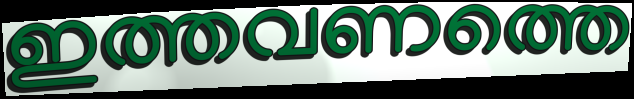
ഇത്തവണത്തെ